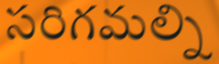
సరిగమల్ని